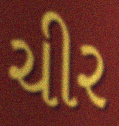
ચીર